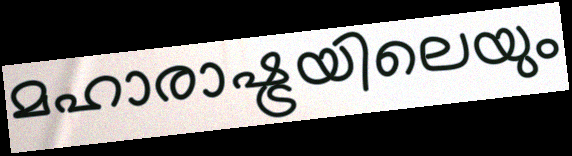
മഹാരാഷ്ട്രയിലെയും